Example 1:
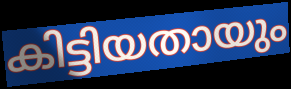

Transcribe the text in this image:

കിട്ടിയതായും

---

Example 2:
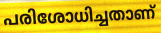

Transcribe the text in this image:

പരിശോധിച്ചതാണ്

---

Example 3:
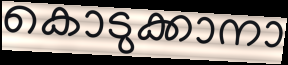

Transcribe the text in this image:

കൊടുക്കാനാ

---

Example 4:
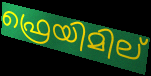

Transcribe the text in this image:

ഫ്രെയിമില്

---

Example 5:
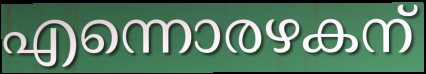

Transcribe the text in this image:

എന്നൊരഴകന്